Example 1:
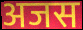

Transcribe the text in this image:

अजस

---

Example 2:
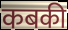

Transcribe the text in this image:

कबकी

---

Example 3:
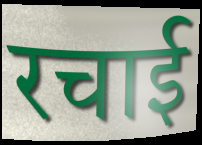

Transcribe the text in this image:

रचाई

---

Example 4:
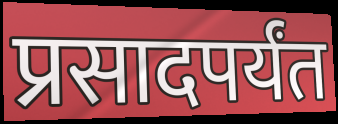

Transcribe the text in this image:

प्रसादपर्यंत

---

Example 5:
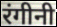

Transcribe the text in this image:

रंगीनी